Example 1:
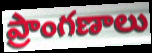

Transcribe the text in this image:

ప్రాంగణాలు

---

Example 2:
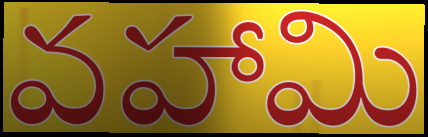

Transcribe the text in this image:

వహామి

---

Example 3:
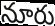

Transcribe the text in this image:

నూరు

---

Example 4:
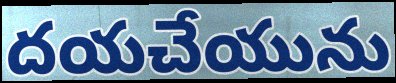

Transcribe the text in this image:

దయచేయును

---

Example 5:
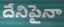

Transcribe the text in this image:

దేనిపైనా